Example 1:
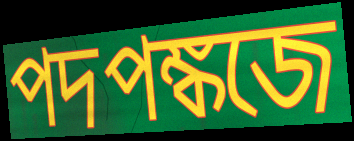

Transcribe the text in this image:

পদপঙ্কজে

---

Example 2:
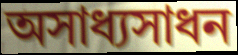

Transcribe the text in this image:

অসাধ্যসাধন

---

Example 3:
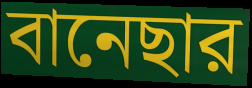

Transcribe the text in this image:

বানেছার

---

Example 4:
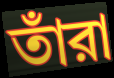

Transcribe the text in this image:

তাঁরা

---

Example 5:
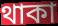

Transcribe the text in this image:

থাকা